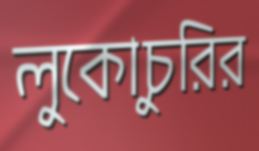
লুকোচুরির